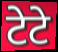
टेटे